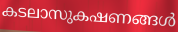
കടലാസുകഷണങ്ങൾ